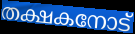
തക്ഷകനോട്